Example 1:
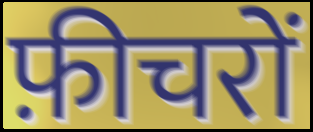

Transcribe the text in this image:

फ़ीचरों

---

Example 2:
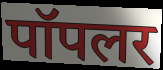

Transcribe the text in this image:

पॉपलर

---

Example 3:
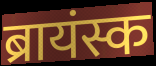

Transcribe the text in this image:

ब्रायंस्क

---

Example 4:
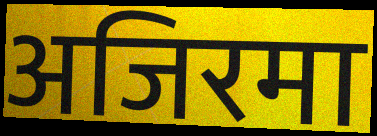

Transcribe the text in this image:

अजिरमा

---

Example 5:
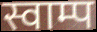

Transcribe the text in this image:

स्वाम्प